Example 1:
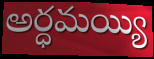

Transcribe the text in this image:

అర్ధమయ్యి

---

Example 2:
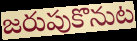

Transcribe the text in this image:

జరుపుకొనుట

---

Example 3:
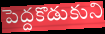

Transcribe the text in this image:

పెద్దకొడుకుని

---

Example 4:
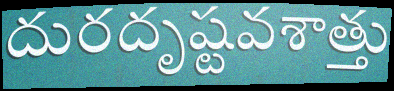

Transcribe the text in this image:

దురదృష్టవశాత్తు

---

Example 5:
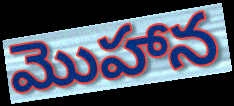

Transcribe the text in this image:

మొహాన